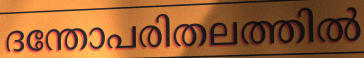
ദന്തോപരിതലത്തിൽ